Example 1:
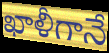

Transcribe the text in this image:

ఖాళీగానే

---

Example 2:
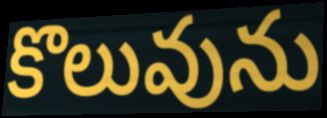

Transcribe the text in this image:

కొలువును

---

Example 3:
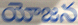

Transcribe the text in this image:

యోజన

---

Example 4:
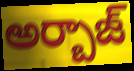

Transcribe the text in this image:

అర్బాజ్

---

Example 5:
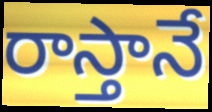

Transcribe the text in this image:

రాస్తానే